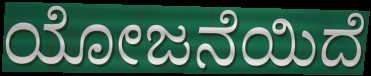
ಯೋಜನೆಯಿದೆ